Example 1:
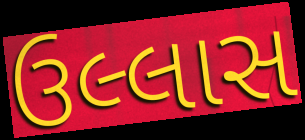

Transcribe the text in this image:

ઉલ્લાસ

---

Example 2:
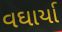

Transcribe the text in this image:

વઘાર્યા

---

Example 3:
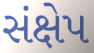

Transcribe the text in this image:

સંક્ષેપ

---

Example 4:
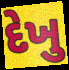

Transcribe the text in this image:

દેખુ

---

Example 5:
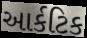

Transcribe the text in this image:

આર્કટિક